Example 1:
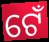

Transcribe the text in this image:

ଟେଁ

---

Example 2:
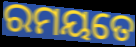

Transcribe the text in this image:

ରମୟତେ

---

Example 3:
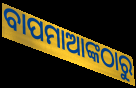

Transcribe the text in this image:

ବାପମାଆଙ୍କଠାରୁ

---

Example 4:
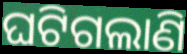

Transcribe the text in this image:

ଘଟିଗଲାଣି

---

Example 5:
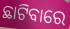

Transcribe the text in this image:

ଛାଟିବାରେ